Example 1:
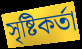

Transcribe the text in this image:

সৃষ্টিকৰ্তা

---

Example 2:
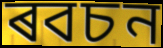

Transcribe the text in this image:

ৰবচন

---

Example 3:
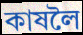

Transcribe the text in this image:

কাষলৈ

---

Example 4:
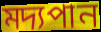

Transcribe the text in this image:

মদ্যপান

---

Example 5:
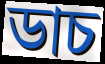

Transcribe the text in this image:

ডাচ